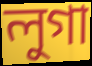
লুগা